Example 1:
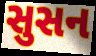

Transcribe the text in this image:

સુસન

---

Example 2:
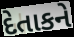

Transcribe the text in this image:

દેતાકને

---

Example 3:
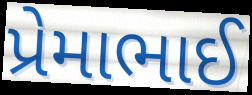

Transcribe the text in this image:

પ્રેમાભાઈ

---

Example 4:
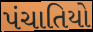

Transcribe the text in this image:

પંચાતિયો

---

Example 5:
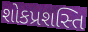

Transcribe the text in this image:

શોકપ્રશસ્તિ